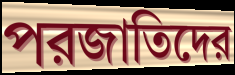
পরজাতিদের